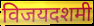
विजयदशमी